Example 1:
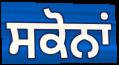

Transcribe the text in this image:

ਸਕੋਨਾਂ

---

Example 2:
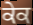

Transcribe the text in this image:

ਕੇਕ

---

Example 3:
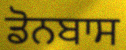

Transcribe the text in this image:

ਡੋਨਬਾਸ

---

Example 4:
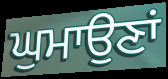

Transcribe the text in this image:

ਘੁਮਾਉਣਾਂ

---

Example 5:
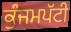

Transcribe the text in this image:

ਕੁੰਜਮਪੱਟੀ